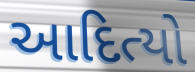
આદિત્યો